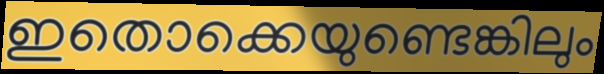
ഇതൊക്കെയുണ്ടെങ്കിലും